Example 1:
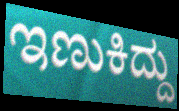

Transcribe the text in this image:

ಇಣುಕಿದ್ದು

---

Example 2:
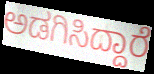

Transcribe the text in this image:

ಅಡಗಿಸಿದ್ದಾರೆ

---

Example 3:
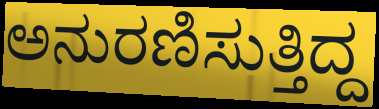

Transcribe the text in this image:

ಅನುರಣಿಸುತ್ತಿದ್ದ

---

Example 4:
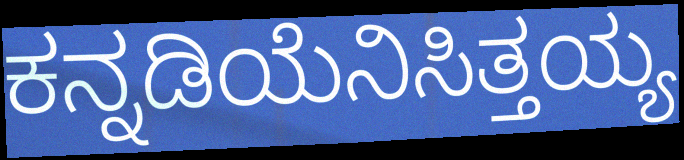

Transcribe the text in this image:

ಕನ್ನಡಿಯೆನಿಸಿತ್ತಯ್ಯ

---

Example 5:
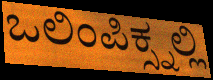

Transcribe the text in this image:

ಒಲಿಂಪಿಕ್ಸ್ನಲ್ಲಿ